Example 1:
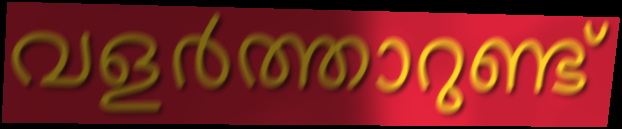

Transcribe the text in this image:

വളർത്താറുണ്ട്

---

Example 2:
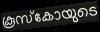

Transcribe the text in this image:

കൂസ്കോയുടെ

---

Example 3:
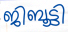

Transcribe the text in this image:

ജിബൂട്ടി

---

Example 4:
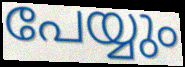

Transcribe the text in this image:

പേയ്യും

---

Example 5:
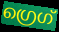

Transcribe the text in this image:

ഗ്രെഗ്